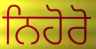
ਨਿਹੋਰੋ